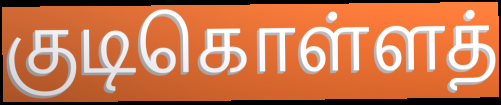
குடிகொள்ளத்